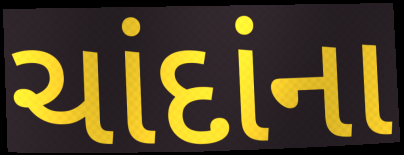
ચાંદાંના